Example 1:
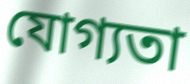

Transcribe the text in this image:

যোগ্যতা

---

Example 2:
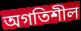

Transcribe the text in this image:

অগতিশীল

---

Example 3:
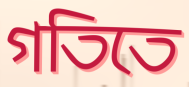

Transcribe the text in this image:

গতিতে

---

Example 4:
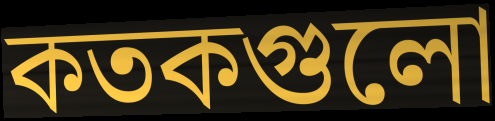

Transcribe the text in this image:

কতকগুলো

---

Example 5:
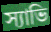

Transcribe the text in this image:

স্যাভি